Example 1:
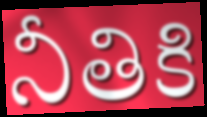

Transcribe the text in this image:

నీతికి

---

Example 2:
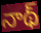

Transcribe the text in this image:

నాథ్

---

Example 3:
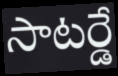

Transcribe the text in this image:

సాటర్డే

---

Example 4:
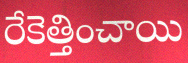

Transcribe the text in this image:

రేకెత్తించాయి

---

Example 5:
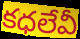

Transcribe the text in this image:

కధలేవీ